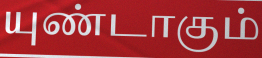
யுண்டாகும்